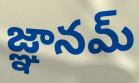
జ్ఞానమ్